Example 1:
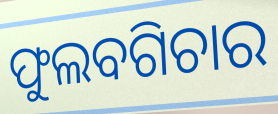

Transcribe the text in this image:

ଫୁଲବଗିଚାର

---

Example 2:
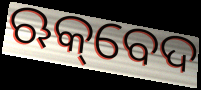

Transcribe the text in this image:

ଋକ୍‌ବେଦ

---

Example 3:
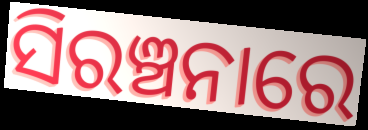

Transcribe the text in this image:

ସିରଞ୍ଚନାରେ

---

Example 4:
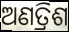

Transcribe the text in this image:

ଅଣତ୍ରିଶ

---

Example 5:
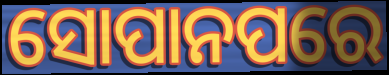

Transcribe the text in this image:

ସୋପାନପରେ